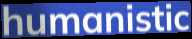
humanistic